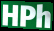
HPh